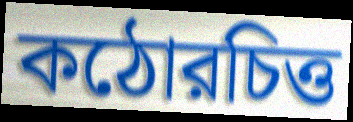
কঠোরচিত্ত